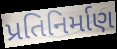
પ્રતિનિર્માણ